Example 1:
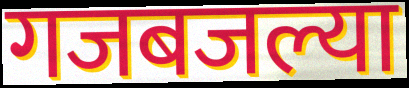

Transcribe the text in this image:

गजबजल्या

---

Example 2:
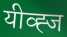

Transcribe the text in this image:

यीव्ह्ज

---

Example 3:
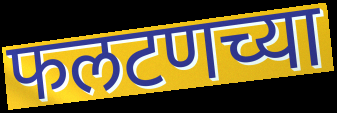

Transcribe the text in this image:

फलटणच्या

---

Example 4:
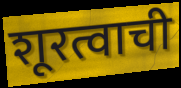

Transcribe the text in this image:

शूरत्वाची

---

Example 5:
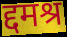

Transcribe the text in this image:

द्दमश्र